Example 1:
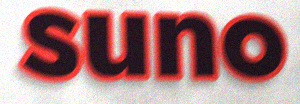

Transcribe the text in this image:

suno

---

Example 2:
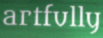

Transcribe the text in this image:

artfully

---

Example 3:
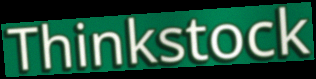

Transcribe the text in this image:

Thinkstock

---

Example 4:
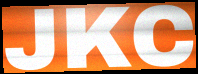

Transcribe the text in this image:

JKC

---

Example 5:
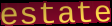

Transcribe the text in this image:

estate